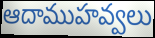
ఆదాముహవ్వలు